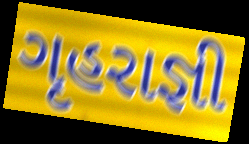
ગૃહરાજ્ઞી